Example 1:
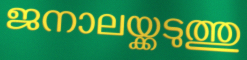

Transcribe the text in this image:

ജനാലയ്ക്കടുത്തു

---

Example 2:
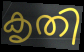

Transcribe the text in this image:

കൃതി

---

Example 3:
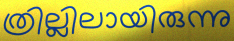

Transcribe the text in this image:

ത്രില്ലിലായിരുന്നു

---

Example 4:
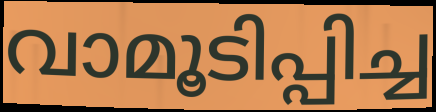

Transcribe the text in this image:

വാമൂടിപ്പിച്ച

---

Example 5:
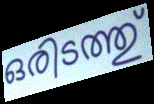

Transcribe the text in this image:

ഒരിടത്തു്